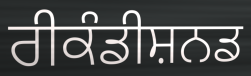
ਰੀਕੰਡੀਸ਼ਨਡ